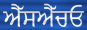
ਐੱਸਐੱਚਓ